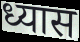
ध्यास